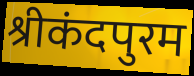
श्रीकंदपुरम